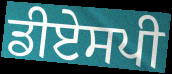
ਡੀਏਸਪੀ